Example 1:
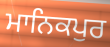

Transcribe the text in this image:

ਮਾਨਿਕਪੁਰ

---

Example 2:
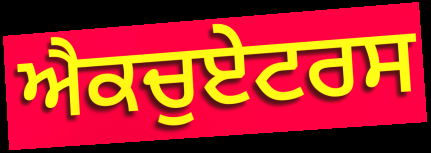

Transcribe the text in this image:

ਐਕਚੁਏਟਰਸ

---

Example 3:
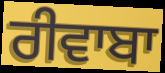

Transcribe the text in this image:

ਰੀਵਾਬਾ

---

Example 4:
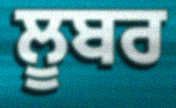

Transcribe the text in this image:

ਲੂਬਰ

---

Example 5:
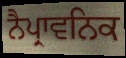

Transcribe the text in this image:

ਨੈਪ੍ਰਾਵਨਿਕ